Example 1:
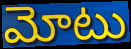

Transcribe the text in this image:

మోటు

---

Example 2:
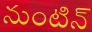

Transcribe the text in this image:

నుంటిన్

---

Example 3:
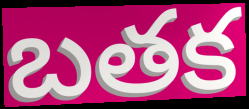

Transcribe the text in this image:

బతక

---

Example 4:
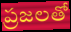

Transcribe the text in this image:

ప్రజలతో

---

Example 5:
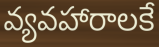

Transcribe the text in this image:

వ్యవహారాలకే